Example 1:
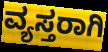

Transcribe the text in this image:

ವ್ಯಸ್ತರಾಗಿ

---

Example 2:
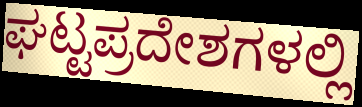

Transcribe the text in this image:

ಘಟ್ಟಪ್ರದೇಶಗಳಲ್ಲಿ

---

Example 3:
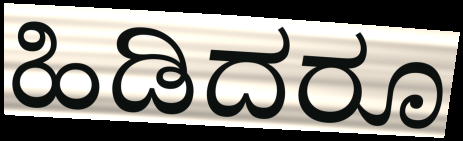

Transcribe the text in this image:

ಹಿಡಿದರೂ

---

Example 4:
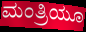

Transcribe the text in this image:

ಮಂತ್ರಿಯೂ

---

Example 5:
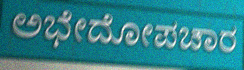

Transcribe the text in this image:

ಅಭೇದೋಪಚಾರ